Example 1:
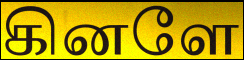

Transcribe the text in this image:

கினளே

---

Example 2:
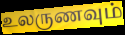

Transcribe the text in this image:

உலருணவும்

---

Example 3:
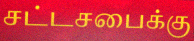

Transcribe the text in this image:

சட்டசபைக்கு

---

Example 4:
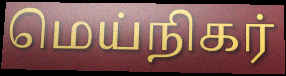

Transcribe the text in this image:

மெய்நிகர்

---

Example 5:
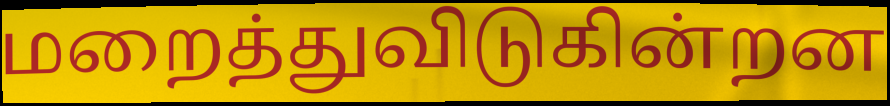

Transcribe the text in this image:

மறைத்துவிடுகின்றன